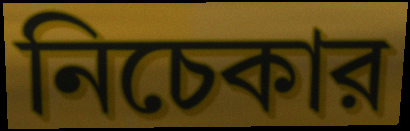
নিচেকার